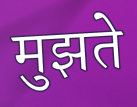
मुझते